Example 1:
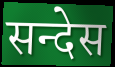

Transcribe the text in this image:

सन्देस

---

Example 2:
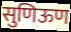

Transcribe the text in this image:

सुणिऊण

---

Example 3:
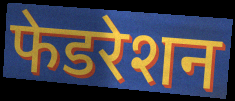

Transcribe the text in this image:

फेडरेशन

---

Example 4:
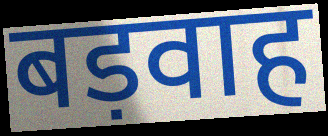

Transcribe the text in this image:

बड़वाह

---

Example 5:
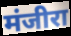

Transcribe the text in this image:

मंजीरा